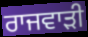
ਰਾਜਵਾੜੀ